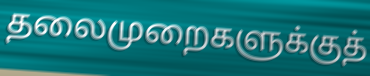
தலைமுறைகளுக்குத்